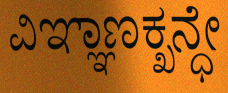
ವಿಞ್ಞಾಣಕ್ಖನ್ಧೇ